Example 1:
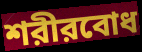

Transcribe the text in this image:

শরীরবোধ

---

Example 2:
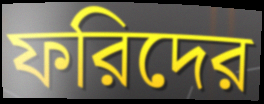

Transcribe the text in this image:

ফরিদের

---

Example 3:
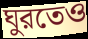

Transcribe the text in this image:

ঘুরতেও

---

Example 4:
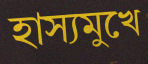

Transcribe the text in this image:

হাস্যমুখে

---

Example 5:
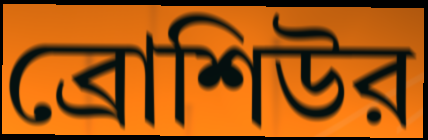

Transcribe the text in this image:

ব্রোশিউর